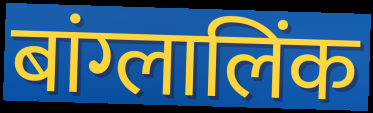
बांग्लालिंक